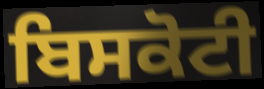
ਬਿਸਕੋਟੀ